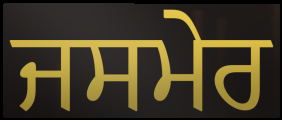
ਜਸਮੇਰ